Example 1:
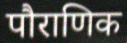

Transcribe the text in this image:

पौराणिक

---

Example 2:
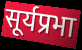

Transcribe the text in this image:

सूर्यप्रभा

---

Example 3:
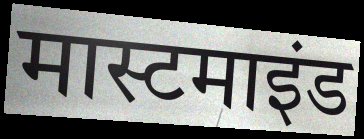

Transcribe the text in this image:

मास्टमाइंड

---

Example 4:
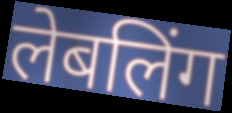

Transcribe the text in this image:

लेबलिंग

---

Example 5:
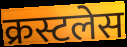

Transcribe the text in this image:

क्रस्टलेस